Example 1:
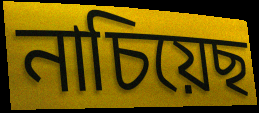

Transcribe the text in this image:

নাচিয়েছ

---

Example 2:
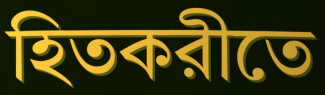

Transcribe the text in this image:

হিতকরীতে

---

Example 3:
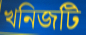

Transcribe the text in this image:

খনিজটি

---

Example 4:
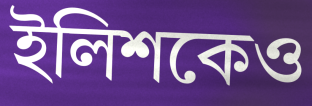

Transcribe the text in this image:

ইলিশকেও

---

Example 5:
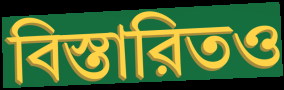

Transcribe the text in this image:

বিস্তারিতও